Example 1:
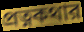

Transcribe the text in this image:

প্রত্নকথার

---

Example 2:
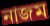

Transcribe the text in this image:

নাজম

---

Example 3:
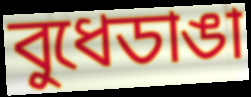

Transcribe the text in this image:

বুধেডাঙা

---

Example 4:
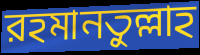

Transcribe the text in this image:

রহমানতুল্লাহ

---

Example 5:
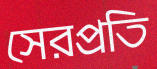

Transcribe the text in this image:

সেরপ্রতি